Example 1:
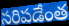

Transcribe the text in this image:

సరిపడేంత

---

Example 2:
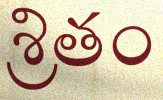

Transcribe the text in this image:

శ్రితం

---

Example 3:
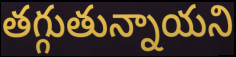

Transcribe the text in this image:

తగ్గుతున్నాయని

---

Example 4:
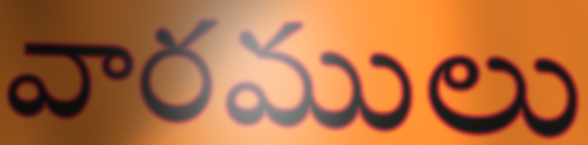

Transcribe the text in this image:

వారములు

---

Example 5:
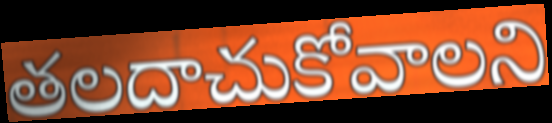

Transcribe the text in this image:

తలదాచుకోవాలని